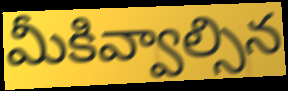
మీకివ్వాల్సిన